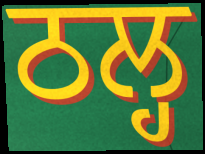
ਠਲ੍ਹ